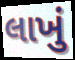
લાખું